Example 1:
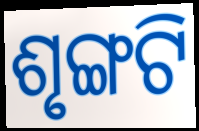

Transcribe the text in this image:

ଶୃଙ୍ଗଟି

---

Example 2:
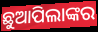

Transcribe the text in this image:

ଛୁଆପିଲାଙ୍କର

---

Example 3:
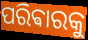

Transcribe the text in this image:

ପରିଵାରକୁ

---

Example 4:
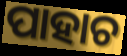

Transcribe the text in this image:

ପାହାଚ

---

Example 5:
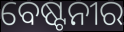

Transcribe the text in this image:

ବେଷ୍ଟନୀର